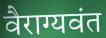
वैराग्यवंत